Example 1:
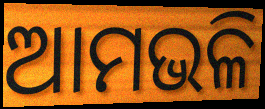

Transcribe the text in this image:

ଆମଭଳି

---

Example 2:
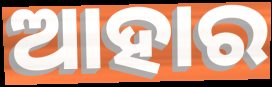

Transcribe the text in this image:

ଆହାର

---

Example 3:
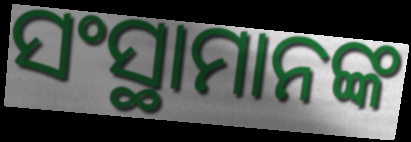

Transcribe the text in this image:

ସଂସ୍ଥାମାନଙ୍କ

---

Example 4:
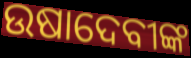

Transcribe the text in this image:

ଉଷାଦେବୀଙ୍କ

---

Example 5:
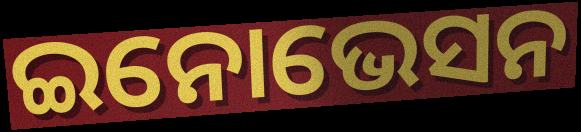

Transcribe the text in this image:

ଇନୋଭେସନ